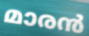
മാരൻ